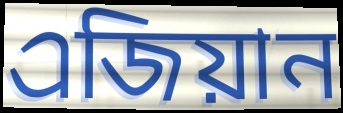
এজিয়ান